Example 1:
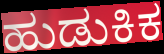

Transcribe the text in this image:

ಹುಡುಕಿಕ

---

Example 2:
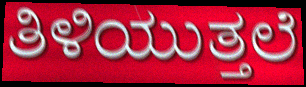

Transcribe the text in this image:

ತಿಳಿಯುತ್ತಲೆ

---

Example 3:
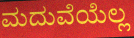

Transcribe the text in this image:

ಮದುವೆಯೆಲ್ಲ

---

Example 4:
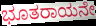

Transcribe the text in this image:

ಭೂತರಾಯನೇ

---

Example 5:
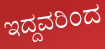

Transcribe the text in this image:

ಇದ್ದವರಿಂದ